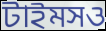
টাইমসও